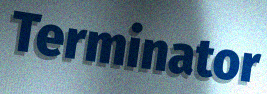
Terminator